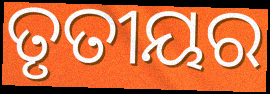
ତୃତୀୟର